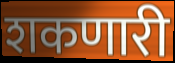
शकणारी